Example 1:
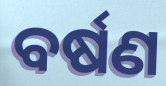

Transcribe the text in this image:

ବର୍ଷଣ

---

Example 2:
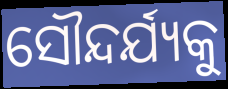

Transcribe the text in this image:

ସୌନ୍ଦର୍ଯ୍ଯକୁ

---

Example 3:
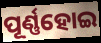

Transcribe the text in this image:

ପୂର୍ଣ୍ଣହୋଇ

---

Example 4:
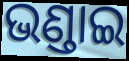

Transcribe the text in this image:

ଭଣ୍ଡାଇ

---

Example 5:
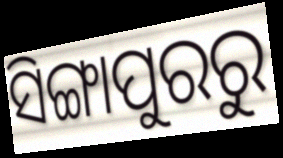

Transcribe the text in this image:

ସିଙ୍ଗାପୁରରୁ